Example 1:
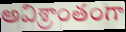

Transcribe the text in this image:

అవిశ్రాంతంగా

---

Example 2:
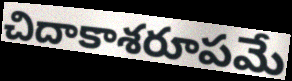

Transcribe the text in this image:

చిదాకాశరూపమే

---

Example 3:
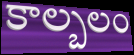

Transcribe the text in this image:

కాల్బలం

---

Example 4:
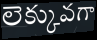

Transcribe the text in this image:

లెక్కువగా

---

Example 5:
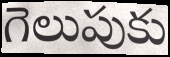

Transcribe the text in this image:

గెలుపుకు